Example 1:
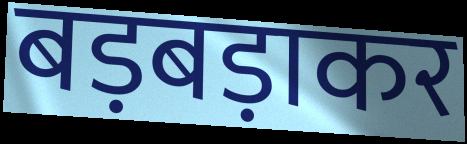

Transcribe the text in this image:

बड़बड़ाकर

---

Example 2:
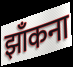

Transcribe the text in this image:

झाँकना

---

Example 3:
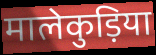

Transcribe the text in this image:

मालेकुड़िया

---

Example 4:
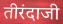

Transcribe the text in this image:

तीरंदाजी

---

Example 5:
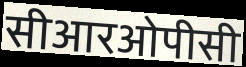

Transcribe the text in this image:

सीआरओपीसी